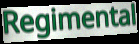
Regimental